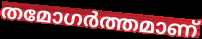
തമോഗർത്തമാണ്